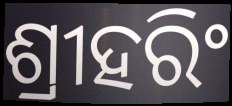
ଶ୍ରୀହରିଂ